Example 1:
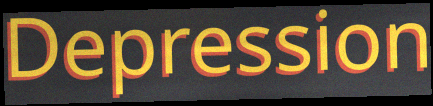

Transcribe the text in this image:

Depression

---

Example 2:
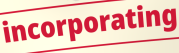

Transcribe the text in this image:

incorporating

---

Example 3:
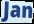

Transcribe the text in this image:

Jan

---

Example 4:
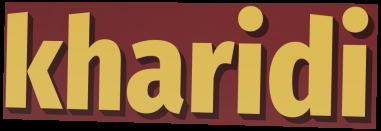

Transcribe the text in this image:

kharidi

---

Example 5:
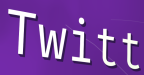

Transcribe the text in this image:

Twitt